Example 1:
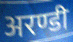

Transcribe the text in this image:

अरण्डी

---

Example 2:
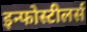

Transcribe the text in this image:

इन्फोस्टीलर्स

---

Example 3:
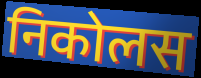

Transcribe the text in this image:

निकोलस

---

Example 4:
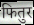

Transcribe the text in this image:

फितुर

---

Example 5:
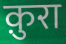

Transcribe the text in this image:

क़ुरा